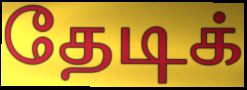
தேடிக்